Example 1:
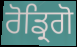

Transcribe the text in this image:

ਰੋਡ੍ਰਿਗੋ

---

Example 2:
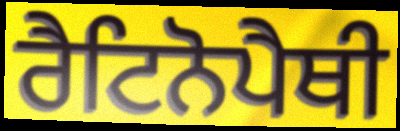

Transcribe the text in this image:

ਰੈਟਿਨੋਪੈਥੀ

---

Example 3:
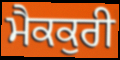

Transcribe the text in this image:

ਮੈਕਕੁਰੀ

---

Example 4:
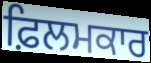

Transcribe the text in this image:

ਫ਼ਿਲਮਕਾਰ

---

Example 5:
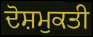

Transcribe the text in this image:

ਦੋਸ਼ਮੁਕਤੀ